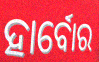
ହାର୍ବୋର